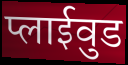
प्‍लाईवुड